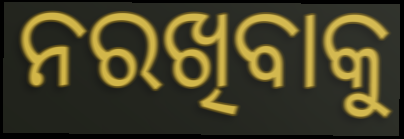
ନରଖିବାକୁ